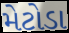
મેટોડા